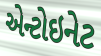
એન્ટોઇનેટ